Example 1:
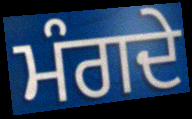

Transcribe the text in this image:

ਮੰਗਦੇ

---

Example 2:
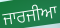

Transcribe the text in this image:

ਜਾਰਜੀਆ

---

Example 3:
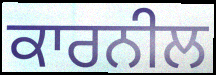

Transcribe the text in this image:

ਕਾਰਨੀਲ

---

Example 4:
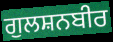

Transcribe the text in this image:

ਗੁਲਸ਼ਨਬੀਰ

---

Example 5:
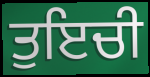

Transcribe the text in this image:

ਤੁਇਚੀ